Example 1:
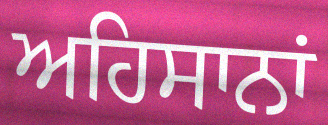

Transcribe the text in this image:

ਅਹਿਸਾਨਾਂ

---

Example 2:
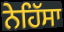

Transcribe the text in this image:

ਨੇਹਿੱਸਾ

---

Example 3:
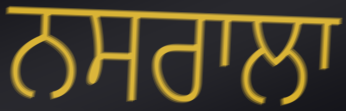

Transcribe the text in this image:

ਨਸਰਾਲਾ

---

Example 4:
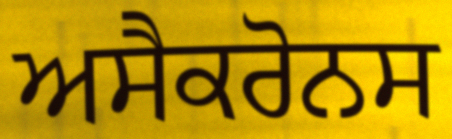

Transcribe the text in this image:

ਅਸੈਕਰੋਨਸ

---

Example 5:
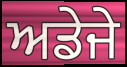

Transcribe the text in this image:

ਅਡੇਜੇ